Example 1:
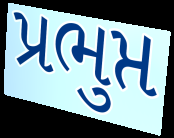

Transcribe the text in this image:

પ્રભુપ્ત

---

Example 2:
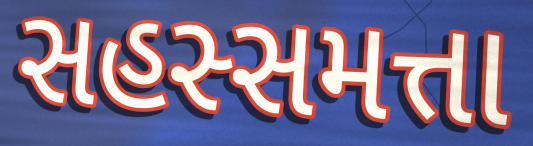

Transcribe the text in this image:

સહસ્સમત્તા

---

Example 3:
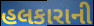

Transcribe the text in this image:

હલકારાની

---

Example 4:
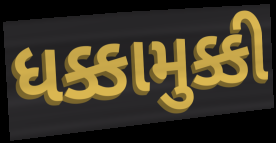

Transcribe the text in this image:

ધક્કામુક્કી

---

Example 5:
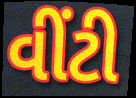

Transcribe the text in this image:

વીંટી